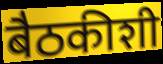
बैठकीशी